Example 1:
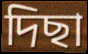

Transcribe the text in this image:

দিছা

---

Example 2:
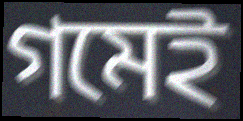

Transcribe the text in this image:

গমেই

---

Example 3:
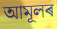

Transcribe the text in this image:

আমূলৰ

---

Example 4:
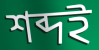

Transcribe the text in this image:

শব্দই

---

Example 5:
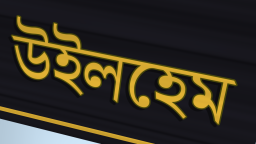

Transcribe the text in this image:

উইলহেম